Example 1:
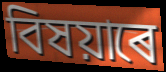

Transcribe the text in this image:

বিষয়াৰে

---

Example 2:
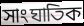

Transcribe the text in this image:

সাংঘাতিক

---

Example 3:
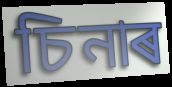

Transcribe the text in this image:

চিনাৰ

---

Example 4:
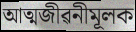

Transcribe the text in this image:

আত্মজীৱনীমূলক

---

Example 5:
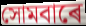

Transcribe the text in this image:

সোমবাৰে